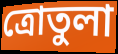
ত্রোতুলা